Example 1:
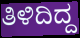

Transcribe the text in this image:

ತಿಳಿದಿದ್ದ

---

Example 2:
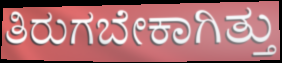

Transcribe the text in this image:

ತಿರುಗಬೇಕಾಗಿತ್ತು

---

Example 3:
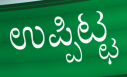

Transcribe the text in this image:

ಉಪ್ಪಿಟ್ಟ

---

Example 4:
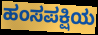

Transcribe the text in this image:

ಹಂಸಪಕ್ಷಿಯ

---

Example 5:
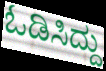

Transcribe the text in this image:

ಓಡಿಸಿದ್ದು